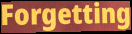
Forgetting